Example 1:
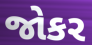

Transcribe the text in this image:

જોકર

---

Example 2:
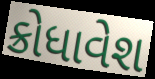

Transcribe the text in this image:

ક્રોધાવેશ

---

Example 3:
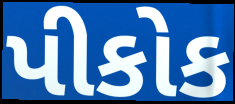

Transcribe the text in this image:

પીકોક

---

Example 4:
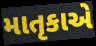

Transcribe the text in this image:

માતૃકાએ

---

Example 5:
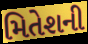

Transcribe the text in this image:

મિતેશની